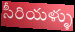
సీరియళ్ళు